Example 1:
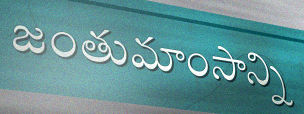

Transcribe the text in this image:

జంతుమాంసాన్ని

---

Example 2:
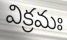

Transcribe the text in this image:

విక్రమః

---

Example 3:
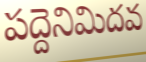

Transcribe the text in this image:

పద్దెనిమిదవ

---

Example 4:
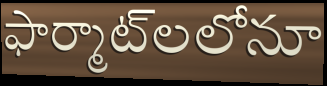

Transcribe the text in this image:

ఫార్మాట్‌లలోనూ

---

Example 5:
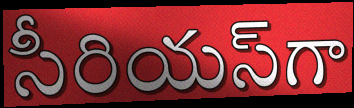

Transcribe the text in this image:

సీరియస్‌గా